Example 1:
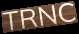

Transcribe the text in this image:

TRNC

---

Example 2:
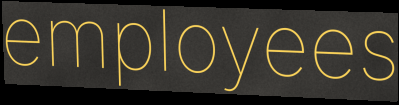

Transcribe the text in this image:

employees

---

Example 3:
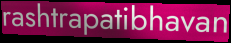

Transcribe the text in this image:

rashtrapatibhavan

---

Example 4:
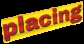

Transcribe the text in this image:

placing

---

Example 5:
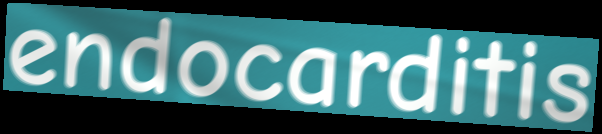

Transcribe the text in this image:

endocarditis